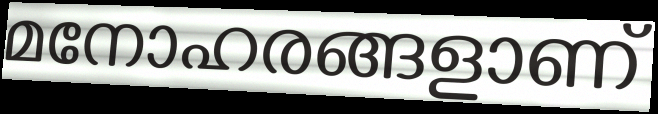
മനോഹരങ്ങളാണ്